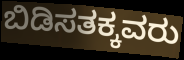
ಬಿಡಿಸತಕ್ಕವರು